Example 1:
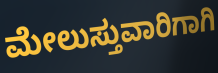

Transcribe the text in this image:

ಮೇಲುಸ್ತುವಾರಿಗಾಗಿ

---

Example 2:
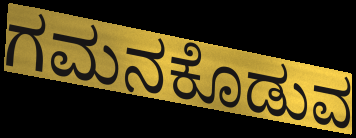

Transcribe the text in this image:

ಗಮನಕೊಡುವ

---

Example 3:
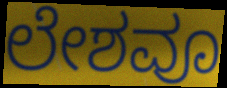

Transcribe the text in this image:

ಲೇಶವೂ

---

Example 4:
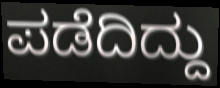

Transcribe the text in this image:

ಪಡೆದಿದ್ದು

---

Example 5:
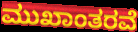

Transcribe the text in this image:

ಮುಖಾಂತರವೆ